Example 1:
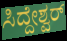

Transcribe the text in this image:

ಸಿದ್ದೇಶ್ವರ್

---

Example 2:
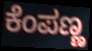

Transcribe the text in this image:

ಕೆಂಪಣ್ಣ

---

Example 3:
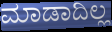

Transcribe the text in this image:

ಮಾಡಾದಿಲ್ಲ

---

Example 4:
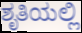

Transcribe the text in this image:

ಶೃತಿಯಲ್ಲಿ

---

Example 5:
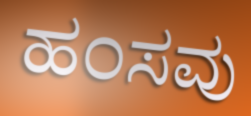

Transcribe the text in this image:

ಹಂಸವು